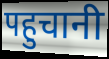
पहुचानी